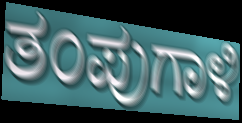
ತಂಪುಗಾಳಿ